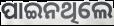
ପାଇନଥିଲେ